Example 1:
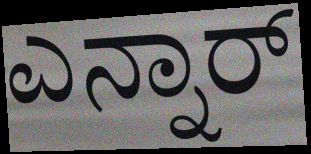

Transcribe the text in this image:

ಎನ್ನಾರ್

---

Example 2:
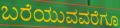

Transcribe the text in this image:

ಬರೆಯುವವರೆಗೂ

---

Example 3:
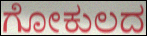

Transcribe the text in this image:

ಗೋಕುಲದ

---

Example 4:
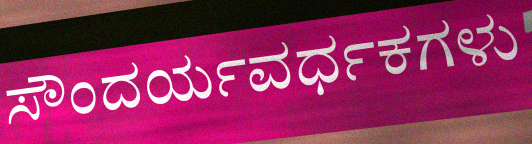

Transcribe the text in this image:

ಸೌಂದರ್ಯವರ್ಧಕಗಳು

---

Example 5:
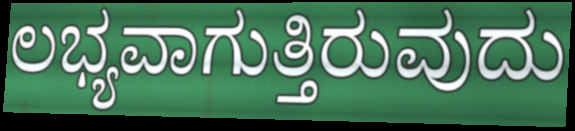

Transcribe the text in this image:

ಲಭ್ಯವಾಗುತ್ತಿರುವುದು